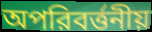
অপরিবর্ত্তনীয়